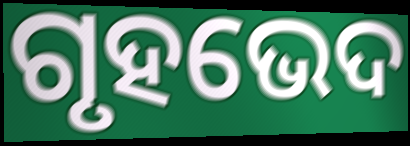
ଗୃହଭେଦ